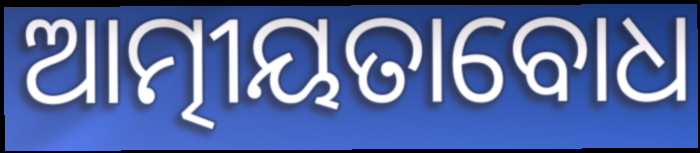
ଆତ୍ମୀୟତାବୋଧ